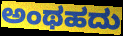
ಅಂಥಹದು